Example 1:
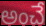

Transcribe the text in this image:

అంచే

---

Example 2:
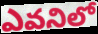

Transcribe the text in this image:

ఎవనిలో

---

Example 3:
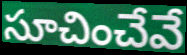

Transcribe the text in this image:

సూచించేవే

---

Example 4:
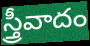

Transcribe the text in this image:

స్త్రీవాదం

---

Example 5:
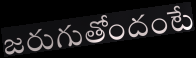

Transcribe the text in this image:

జరుగుతోందంటే